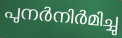
പുനർനിർമിച്ചു